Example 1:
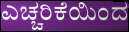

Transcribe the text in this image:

ಎಚ್ಚರಿಕೆಯಿಂದ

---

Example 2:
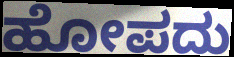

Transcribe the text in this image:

ಹೋಪದು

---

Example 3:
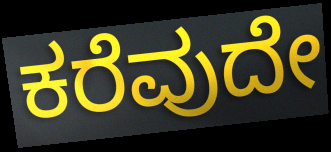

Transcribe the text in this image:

ಕರೆವುದೇ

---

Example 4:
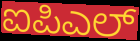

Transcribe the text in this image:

ಐಪಿಎಲ್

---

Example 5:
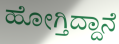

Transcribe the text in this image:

ಹೋಗ್ತಿದ್ದಾನೆ